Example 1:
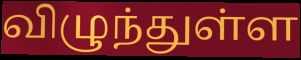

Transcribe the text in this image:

விழுந்துள்ள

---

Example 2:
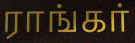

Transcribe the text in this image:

ராங்கர்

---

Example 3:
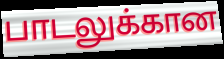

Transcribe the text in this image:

பாடலுக்கான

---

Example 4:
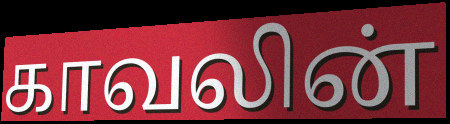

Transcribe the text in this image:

காவலின்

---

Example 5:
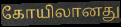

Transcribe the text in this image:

கோயிலானது